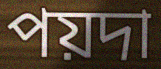
পয়দা